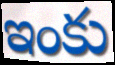
ఇంకు